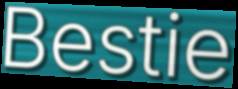
Bestie